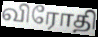
விரோதி